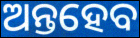
ଅନ୍ତହେବ